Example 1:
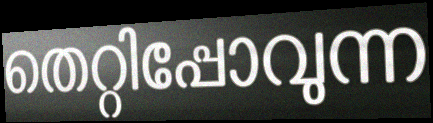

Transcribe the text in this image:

തെറ്റിപ്പോവുന്ന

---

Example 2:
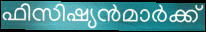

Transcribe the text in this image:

ഫിസിഷ്യൻമാർക്ക്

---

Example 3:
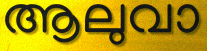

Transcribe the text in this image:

ആലുവാ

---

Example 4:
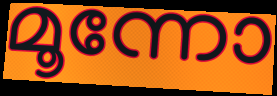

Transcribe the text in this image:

മൂന്നോ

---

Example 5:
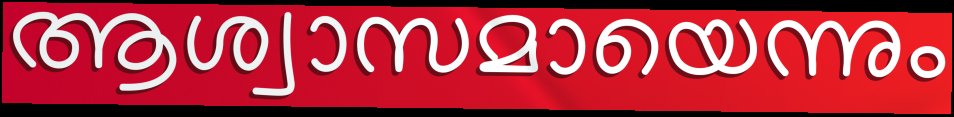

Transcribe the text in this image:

ആശ്വാസമായെന്നും